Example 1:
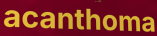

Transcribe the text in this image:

acanthoma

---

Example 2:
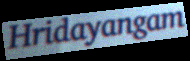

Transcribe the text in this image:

Hridayangam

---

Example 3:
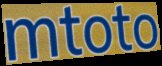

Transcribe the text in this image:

mtoto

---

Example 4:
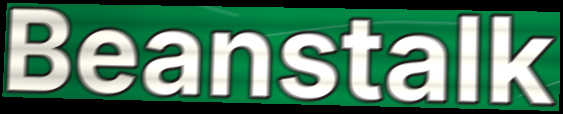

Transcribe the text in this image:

Beanstalk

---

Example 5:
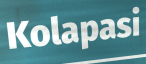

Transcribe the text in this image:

Kolapasi